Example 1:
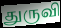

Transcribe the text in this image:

துருவி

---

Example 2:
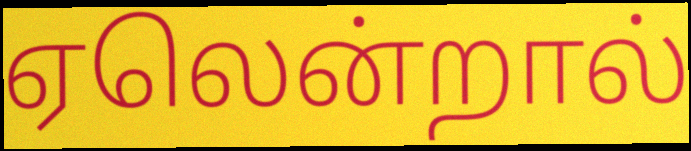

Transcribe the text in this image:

ஏலென்றால்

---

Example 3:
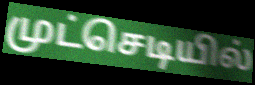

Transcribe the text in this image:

முட்செடியில்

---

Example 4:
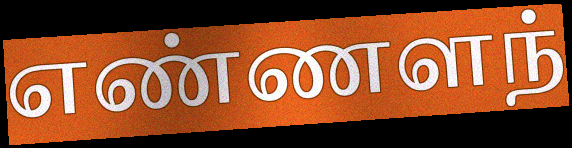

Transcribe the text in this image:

எண்ணளந்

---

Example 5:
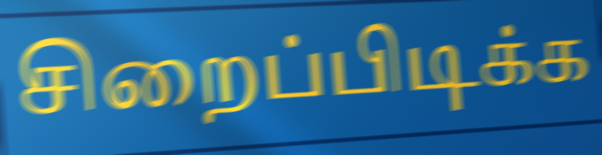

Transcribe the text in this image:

சிறைப்பிடிக்க